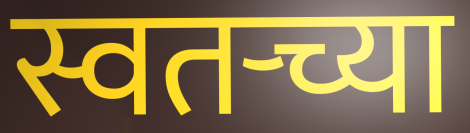
स्वतर्‍च्या